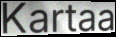
Kartaa